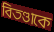
বিতণ্ডাকে